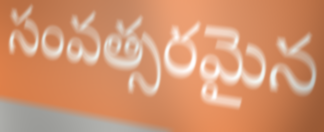
సంవత్సరమైన